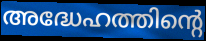
അദ്ധേഹത്തിന്റെ